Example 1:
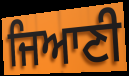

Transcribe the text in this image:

ਜਿਆਣੀ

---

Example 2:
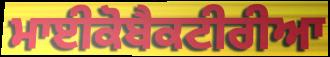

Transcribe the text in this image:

ਮਾਈਕੋਬੈਕਟੀਰੀਆ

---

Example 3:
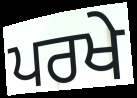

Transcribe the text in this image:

ਪਰਖੇ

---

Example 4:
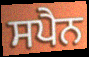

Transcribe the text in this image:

ਸਪੈਨ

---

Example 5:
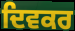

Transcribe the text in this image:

ਦਿਵਕਰ